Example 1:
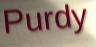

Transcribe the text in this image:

Purdy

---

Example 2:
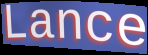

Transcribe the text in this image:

Lance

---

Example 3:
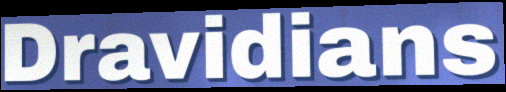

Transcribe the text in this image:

Dravidians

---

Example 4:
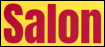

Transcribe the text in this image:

Salon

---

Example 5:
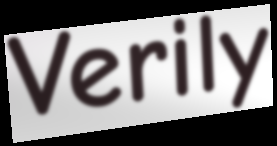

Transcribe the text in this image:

Verily